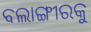
ବଲାଙ୍ଗୀରକୁ